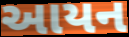
આયન